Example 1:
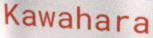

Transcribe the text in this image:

Kawahara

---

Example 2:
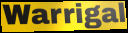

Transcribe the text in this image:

Warrigal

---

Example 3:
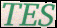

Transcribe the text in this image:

TES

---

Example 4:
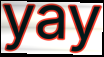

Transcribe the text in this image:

yay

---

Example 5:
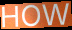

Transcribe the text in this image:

HOW